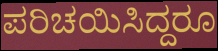
ಪರಿಚಯಿಸಿದ್ದರೂ